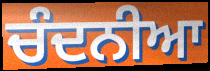
ਚੰਦਨੀਆ